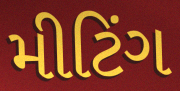
મીટિંગ